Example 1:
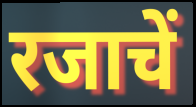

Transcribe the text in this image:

रजाचें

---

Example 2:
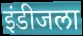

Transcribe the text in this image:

इंडीजला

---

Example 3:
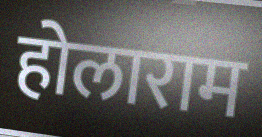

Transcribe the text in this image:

होलाराम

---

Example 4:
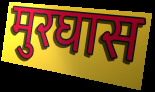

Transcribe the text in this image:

मुरघास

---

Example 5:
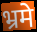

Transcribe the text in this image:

भ्रमे